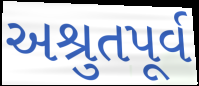
અશ્રુતપૂર્વ